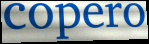
copero